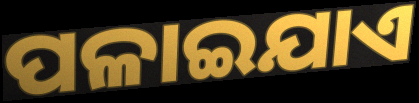
ପଳାଇଯାଏ